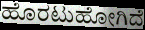
ಹೊರಟುಹೋಗಿದೆ